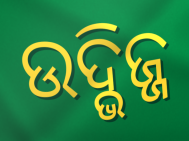
ଉଦ୍ଭିଜ୍ଜ